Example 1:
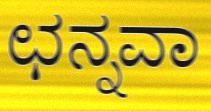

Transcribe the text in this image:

ಛನ್ನವಾ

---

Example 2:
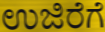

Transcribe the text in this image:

ಉಜಿರೆಗೆ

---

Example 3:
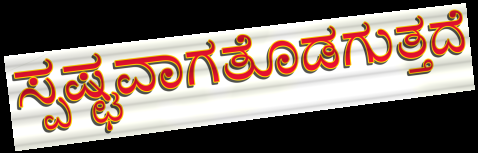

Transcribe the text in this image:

ಸ್ಪಷ್ಟವಾಗತೊಡಗುತ್ತದೆ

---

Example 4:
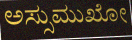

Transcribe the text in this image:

ಅಸ್ಸುಮುಖೋ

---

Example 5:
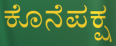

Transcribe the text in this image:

ಕೊನೆಪಕ್ಷ